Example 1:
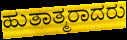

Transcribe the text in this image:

ಹುತಾತ್ಮರಾದರು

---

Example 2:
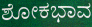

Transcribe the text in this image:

ಶೋಕಭಾವ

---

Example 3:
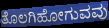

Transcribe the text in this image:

ತೊಲಗಿಹೋಗುವವು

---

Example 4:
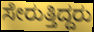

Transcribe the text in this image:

ಸೇರುತ್ತಿದ್ದರು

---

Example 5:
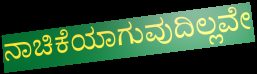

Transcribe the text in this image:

ನಾಚಿಕೆಯಾಗುವುದಿಲ್ಲವೇ